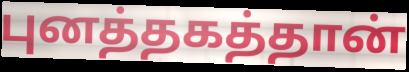
புனத்தகத்தான்